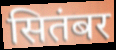
सितंबर